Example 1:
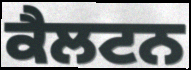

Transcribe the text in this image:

ਕੈਲਟਨ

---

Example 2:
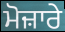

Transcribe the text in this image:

ਮੋਜ਼ਾਰੇ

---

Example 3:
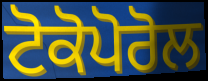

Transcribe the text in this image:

ਟੋਕੋਪੋਰੋਲ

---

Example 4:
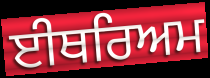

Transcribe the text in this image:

ਈਥਰਿਅਮ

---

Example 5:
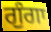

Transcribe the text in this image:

ਗੁੰਗਾ